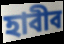
হাবীব